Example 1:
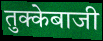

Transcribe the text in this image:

तुक्केबाजी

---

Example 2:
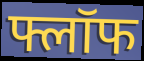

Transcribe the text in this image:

फ्लॉफ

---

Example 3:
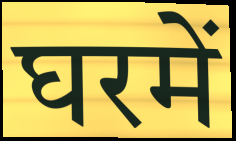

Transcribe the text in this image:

घरमें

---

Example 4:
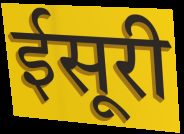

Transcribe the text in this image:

ईसूरी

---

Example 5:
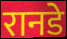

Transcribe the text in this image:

रानडे